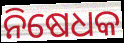
ନିଷେଧକ